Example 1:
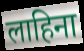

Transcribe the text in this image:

लाहिना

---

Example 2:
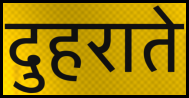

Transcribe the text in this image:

दुहराते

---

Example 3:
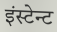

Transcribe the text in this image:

इंस्टेन्ट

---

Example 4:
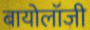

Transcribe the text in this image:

बायोलॉजी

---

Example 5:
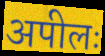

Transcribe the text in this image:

अपीलः